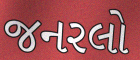
જનરલો